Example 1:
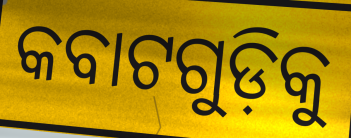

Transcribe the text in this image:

କବାଟଗୁଡ଼ିକୁ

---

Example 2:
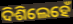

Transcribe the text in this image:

ଦିଶିଲେହେଁ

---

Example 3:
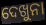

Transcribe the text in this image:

ଦେଖୁନା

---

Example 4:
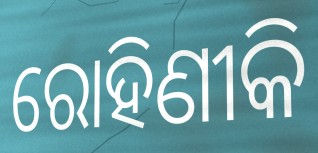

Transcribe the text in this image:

ରୋହିଣୀକି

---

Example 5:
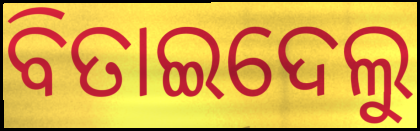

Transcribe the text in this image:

ବିତାଇଦେଲୁ